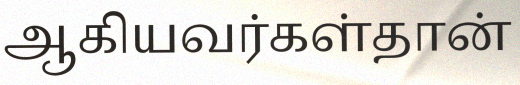
ஆகியவர்கள்தான்